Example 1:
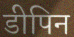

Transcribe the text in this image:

डीपिन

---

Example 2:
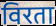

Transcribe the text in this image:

विरता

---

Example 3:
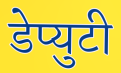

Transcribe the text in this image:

डेप्युटी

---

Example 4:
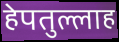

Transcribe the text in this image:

हेपतुल्लाह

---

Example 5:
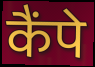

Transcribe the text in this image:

कैंपे